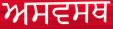
ਅਸਵਸਥ